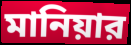
মানিয়ার